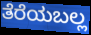
ತೆರೆಯಬಲ್ಲ